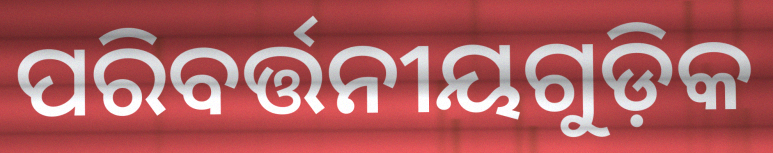
ପରିବର୍ତ୍ତନୀୟଗୁଡ଼ିକ